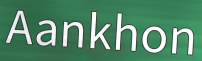
Aankhon